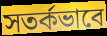
সতর্কভাবে